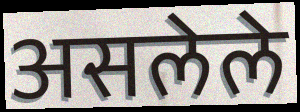
असलेले